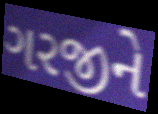
ગરજીને